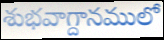
శుభవాగ్దానములో